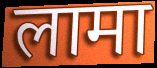
लामा